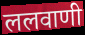
ललवाणी